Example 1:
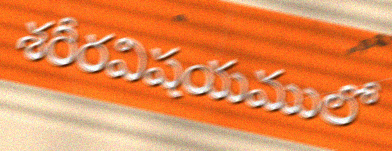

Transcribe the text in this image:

శరీరవిషయములో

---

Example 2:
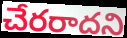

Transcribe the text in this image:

చేరరాదని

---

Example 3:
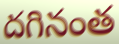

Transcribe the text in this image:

దగినంత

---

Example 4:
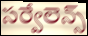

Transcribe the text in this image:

సర్వేలెన్స్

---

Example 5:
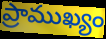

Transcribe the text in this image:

ప్రాముఖ్యం